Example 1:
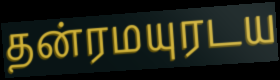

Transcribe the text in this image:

தன்ரமயுரடய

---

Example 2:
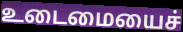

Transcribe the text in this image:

உடைமையைச்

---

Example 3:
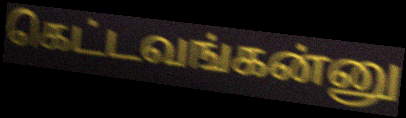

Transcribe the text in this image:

கெட்டவங்கன்னு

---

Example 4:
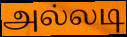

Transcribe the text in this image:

அல்லடி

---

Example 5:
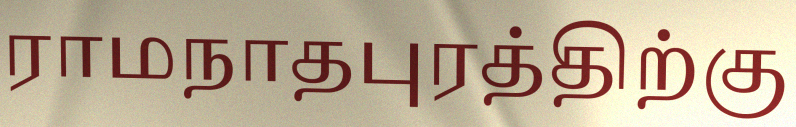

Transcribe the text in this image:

ராமநாதபுரத்திற்கு